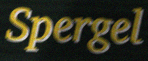
Spergel